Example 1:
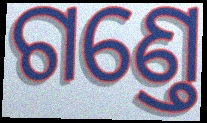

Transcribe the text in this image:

ଗଣ୍ତେ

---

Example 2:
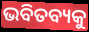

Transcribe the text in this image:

ଭବିତବ୍ୟକୁ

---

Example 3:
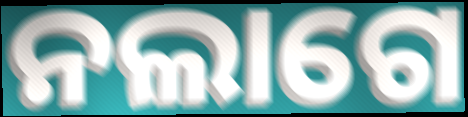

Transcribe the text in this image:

ନଲାଗେ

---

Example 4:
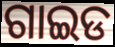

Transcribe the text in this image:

ଗାଇଡ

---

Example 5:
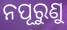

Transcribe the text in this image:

ନପୂରୁଣୁ